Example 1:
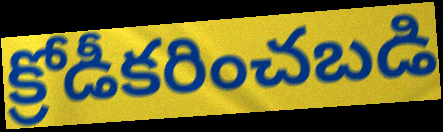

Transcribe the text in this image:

క్రోడీకరించబడి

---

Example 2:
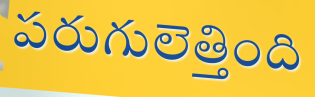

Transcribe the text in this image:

పరుగులెత్తింది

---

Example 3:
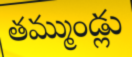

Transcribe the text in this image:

తమ్ముండ్లు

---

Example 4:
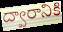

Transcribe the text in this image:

ద్వారానికి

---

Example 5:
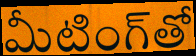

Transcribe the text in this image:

మీటింగ్‌తో